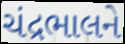
ચંદ્રભાલને